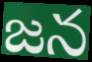
జన